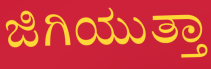
ಜಿಗಿಯುತ್ತಾ